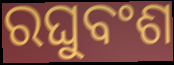
ରଘୁବଂଶ